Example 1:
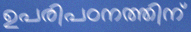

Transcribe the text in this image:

ഉപരിപഠനത്തിന്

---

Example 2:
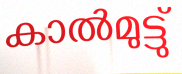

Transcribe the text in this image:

കാൽമുട്ടു്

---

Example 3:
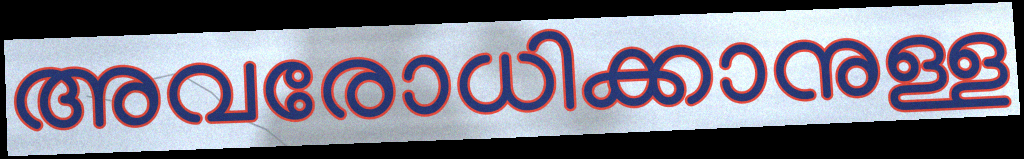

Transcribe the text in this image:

അവരോധിക്കാനുള്ള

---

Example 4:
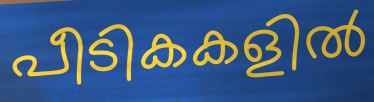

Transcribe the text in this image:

പീടികകളിൽ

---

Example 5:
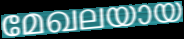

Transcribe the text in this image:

മേഖലയായ